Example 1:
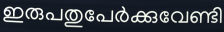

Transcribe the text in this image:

ഇരുപതുപേർക്കുവേണ്ടി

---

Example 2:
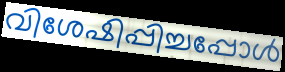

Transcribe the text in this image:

വിശേഷിപ്പിച്ചപ്പോൾ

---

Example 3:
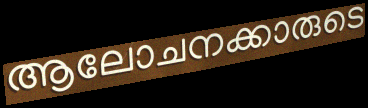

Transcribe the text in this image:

ആലോചനക്കാരുടെ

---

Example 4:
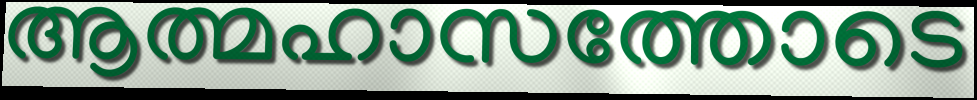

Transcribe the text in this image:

ആത്മഹാസത്തോടെ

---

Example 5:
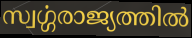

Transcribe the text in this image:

സ്വൎഗ്ഗരാജ്യത്തിൽ